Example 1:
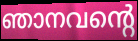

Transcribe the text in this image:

ഞാനവന്റെ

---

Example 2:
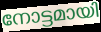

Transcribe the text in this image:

നോട്ടമായി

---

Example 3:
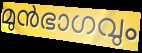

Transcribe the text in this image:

മുൻഭാഗവും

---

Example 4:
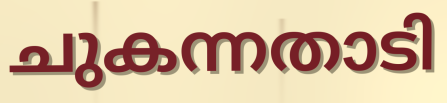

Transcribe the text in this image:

ചുകന്നതാടി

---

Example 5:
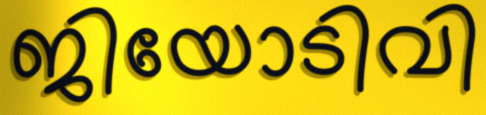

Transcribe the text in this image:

ജിയോടിവി